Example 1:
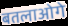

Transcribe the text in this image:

बतलाओगे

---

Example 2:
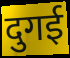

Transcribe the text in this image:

दुगई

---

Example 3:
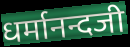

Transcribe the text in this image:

धर्मानन्दजी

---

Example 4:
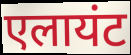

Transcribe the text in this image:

एलायंट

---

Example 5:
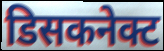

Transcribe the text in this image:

डिसकनेक्ट